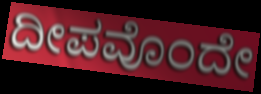
ದೀಪವೊಂದೇ